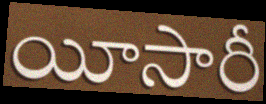
యీసారీ